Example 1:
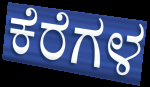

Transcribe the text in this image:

ಕೆರೆಗಳ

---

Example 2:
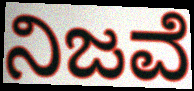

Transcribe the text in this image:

ನಿಜವೆ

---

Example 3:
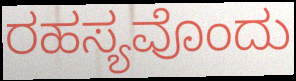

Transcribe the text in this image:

ರಹಸ್ಯವೊಂದು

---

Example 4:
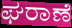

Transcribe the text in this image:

ಘರಾಣೆ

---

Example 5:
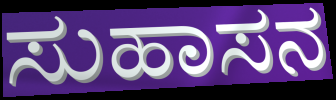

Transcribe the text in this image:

ಸುಹಾಸನ